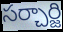
సర్చార్జి